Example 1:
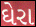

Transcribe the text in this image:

ઘેરા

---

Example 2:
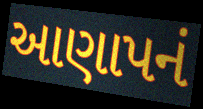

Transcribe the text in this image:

આણાપનં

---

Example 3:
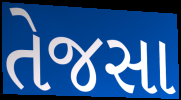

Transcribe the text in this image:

તેજસા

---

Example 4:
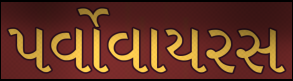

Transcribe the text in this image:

પર્વોવાયરસ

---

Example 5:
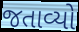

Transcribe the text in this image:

જતાવ્યો